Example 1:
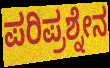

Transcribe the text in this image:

ಪರಿಪ್ರಶ್ನೇನ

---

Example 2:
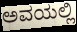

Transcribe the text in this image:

ಅವಯಲ್ಲಿ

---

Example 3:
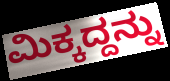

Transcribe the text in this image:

ಮಿಕ್ಕದ್ದನ್ನು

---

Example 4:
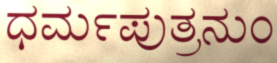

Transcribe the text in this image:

ಧರ್ಮಪುತ್ರನುಂ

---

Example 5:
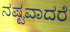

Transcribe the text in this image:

ನಷ್ಟವಾದರೆ